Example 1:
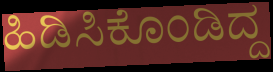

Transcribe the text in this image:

ಹಿಡಿಸಿಕೊಂಡಿದ್ದ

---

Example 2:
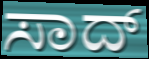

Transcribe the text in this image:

ಸಾದ್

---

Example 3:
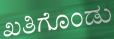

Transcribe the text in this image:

ಖತಿಗೊಂಡು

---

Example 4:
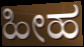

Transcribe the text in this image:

ಹೀಹ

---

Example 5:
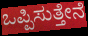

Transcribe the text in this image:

ಒಪ್ಪಿಸುತ್ತೇನೆ